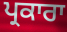
ਪ੍ਰਕਾਰਾ